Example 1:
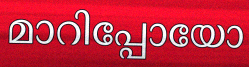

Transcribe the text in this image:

മാറിപ്പോയോ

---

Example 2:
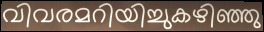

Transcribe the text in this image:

വിവരമറിയിച്ചുകഴിഞ്ഞു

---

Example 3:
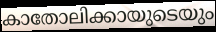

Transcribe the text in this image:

കാതോലിക്കായുടെയും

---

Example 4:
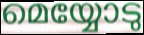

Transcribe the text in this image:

മെയ്യോടു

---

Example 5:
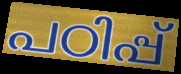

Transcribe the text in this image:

പഠിപ്പ്